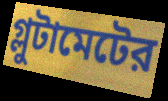
গ্লুটামেটের